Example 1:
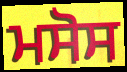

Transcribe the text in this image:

ਮਸੋਸ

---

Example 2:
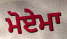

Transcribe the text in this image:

ਮੋਏਮਾ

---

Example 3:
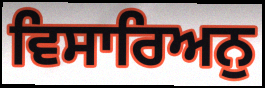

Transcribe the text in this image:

ਵਿਸਾਰਿਅਨੁ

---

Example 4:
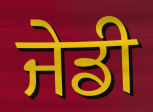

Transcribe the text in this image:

ਜੇਡੀ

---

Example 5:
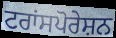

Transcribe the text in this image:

ਟਰਾਂਸਪੋਰੇਸ਼ਨ